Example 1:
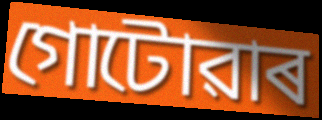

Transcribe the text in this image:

গোটোৱাৰ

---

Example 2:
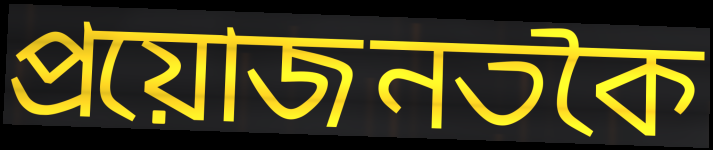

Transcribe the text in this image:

প্ৰয়োজনতকৈ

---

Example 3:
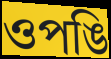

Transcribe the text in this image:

ওপঙি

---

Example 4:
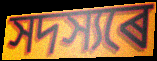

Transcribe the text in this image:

সদস্যৰে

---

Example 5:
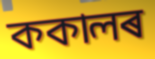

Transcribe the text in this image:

ককালৰ